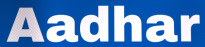
Aadhar